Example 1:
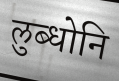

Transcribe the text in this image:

लुब्धोनि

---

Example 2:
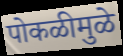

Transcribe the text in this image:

पोकळीमुळे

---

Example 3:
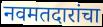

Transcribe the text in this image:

नवमतदारांचा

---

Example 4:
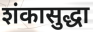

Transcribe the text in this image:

शंकासुद्धा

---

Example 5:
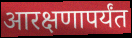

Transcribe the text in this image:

आरक्षणापर्यंत